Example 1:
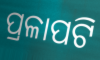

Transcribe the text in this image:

ପ୍ରଳାପଟି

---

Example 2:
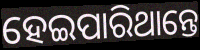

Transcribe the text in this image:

ହେଇପାରିଥାନ୍ତେ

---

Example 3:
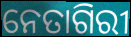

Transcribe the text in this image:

ନେତାଗିରୀ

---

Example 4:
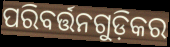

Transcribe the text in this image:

ପରିବର୍ତ୍ତନଗୁଡ଼ିକର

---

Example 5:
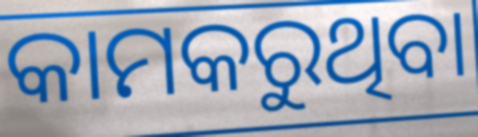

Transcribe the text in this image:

କାମକରୁଥିବା